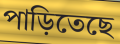
পাড়িতেছে